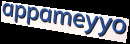
appameyyo